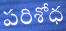
పరిశోధ